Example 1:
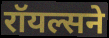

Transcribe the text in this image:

रॉयल्सने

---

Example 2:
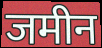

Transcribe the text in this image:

जमीन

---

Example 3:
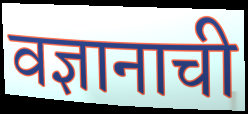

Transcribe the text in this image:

वज्ञानाची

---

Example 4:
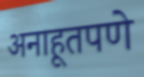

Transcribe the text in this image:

अनाहूतपणे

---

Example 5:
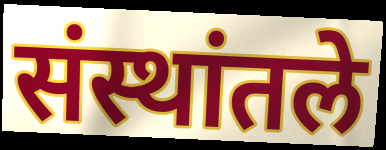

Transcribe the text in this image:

संस्थांतले